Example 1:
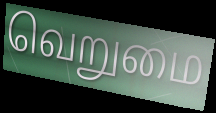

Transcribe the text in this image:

வெறுமை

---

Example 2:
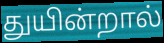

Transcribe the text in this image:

துயின்றால்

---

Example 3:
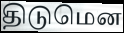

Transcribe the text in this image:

திடுமென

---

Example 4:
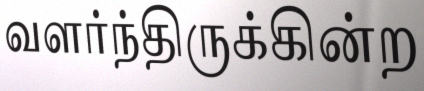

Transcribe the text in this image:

வளர்ந்திருக்கின்ற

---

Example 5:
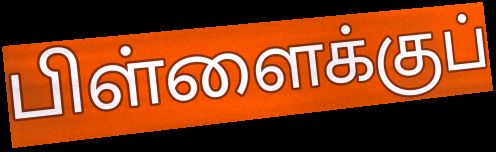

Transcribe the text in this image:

பிள்ளைக்குப்